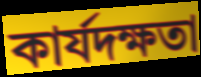
কাৰ্যদক্ষতা